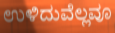
ಉಳಿದುವೆಲ್ಲವೂ